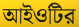
আইওটির